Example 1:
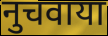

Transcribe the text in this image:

नुचवाया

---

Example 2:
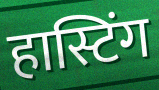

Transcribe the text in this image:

हास्टिंग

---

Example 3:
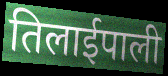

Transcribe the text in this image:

तिलाईपाली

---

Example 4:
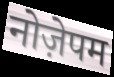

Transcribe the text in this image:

नोज़ेपम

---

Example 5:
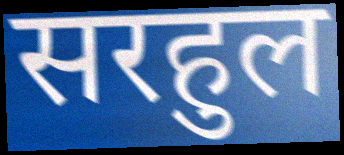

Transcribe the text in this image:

सरहुल